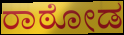
ರಾಠೋಡ